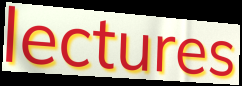
lectures